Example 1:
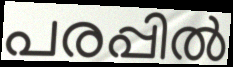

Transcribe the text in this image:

പരപ്പിൽ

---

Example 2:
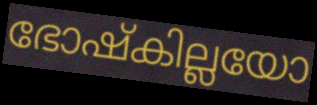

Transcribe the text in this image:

ഭോഷ്കില്ലയോ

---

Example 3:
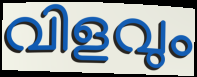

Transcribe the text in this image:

വിളവും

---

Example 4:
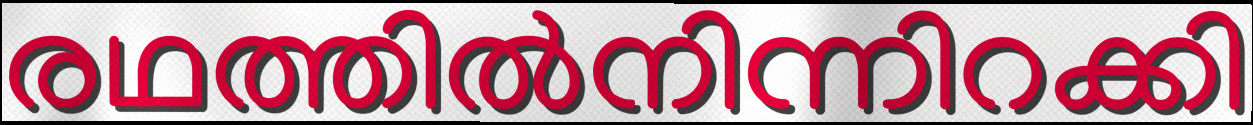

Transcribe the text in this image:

രഥത്തിൽനിന്നിറക്കി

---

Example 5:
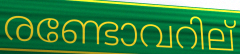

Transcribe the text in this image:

രണ്ടോവറില്